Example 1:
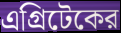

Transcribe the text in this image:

এগ্রিটেকের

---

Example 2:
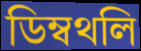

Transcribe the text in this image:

ডিম্বথলি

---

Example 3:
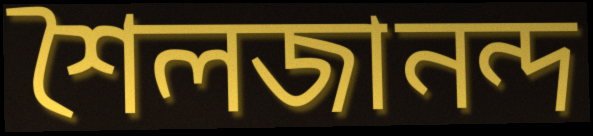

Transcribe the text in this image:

শৈলজানন্দ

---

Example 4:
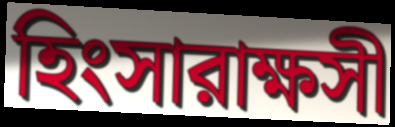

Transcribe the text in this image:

হিংসারাক্ষসী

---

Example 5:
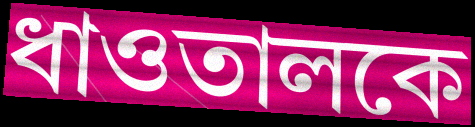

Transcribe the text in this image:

ধাওতালকে